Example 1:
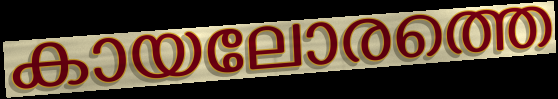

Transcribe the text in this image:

കായലോരത്തെ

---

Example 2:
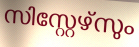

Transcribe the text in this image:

സിസ്റ്റേഴ്സും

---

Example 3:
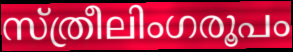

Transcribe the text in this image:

സ്ത്രീലിംഗരൂപം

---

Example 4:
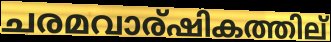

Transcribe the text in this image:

ചരമവാര്ഷികത്തില്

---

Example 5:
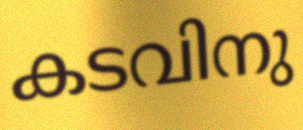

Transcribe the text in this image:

കടവിനു